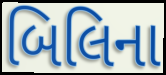
બિલિના